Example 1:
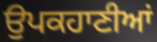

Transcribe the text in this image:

ਉਪਕਹਾਣੀਆਂ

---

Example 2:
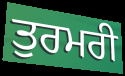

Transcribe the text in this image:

ਤੁਰਮਰੀ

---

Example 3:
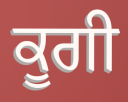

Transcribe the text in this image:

ਕੂਗੀ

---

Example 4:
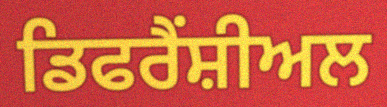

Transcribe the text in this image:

ਡਿਫਰੈਂਸ਼ੀਅਲ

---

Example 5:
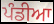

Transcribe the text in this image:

ਪੰਡੀਆ